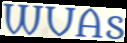
WUAs